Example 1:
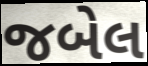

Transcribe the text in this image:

જબેલ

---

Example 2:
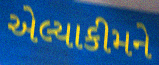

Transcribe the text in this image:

એલ્યાકીમને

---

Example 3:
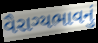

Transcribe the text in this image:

વૈરાગ્યભાવનું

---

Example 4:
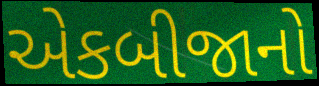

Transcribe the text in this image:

એકબીજાનો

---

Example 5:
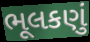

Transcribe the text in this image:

ભૂલકણું